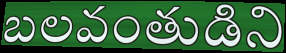
బలవంతుడిని